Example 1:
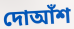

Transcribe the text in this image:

দোআঁশ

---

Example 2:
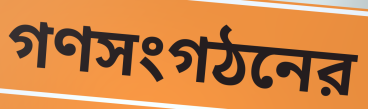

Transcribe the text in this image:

গণসংগঠনের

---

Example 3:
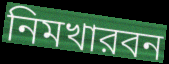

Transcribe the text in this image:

নিমখারবন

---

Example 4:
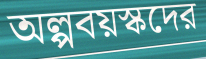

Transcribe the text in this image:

অল্পবয়স্কদের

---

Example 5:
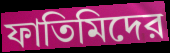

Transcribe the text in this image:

ফাতিমিদের